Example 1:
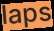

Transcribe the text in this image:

laps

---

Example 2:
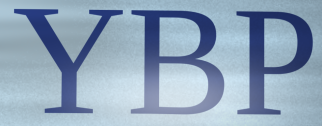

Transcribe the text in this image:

YBP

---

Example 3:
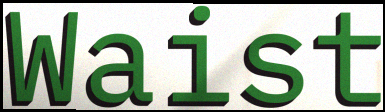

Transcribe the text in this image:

Waist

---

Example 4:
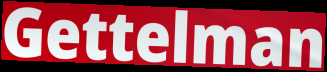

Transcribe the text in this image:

Gettelman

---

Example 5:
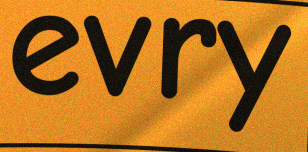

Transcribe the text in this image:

evry